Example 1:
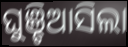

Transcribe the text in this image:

ଘୁଞ୍ଚିଆସିଲା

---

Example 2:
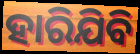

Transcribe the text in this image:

ହାରିଯିବି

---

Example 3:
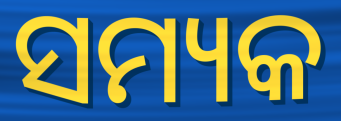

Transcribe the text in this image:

ସମ୍ୟକ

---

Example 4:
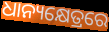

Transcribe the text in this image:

ଧାନ୍ୟକ୍ଷେତ୍ରରେ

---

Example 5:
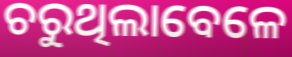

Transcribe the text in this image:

ଚରୁଥିଲାବେଳେ